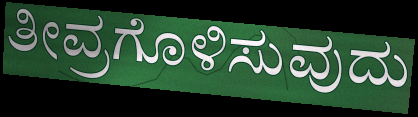
ತೀವ್ರಗೊಳಿಸುವುದು